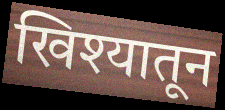
खिश्यातून